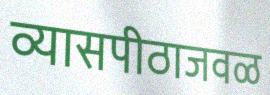
व्यासपीठाजवळ